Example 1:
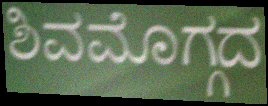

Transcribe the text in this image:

ಶಿವಮೊಗ್ಗದ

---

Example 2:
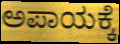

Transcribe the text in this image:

ಅಪಾಯಕ್ಕೆ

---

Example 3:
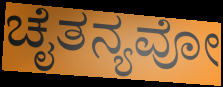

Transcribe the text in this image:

ಚೈತನ್ಯವೋ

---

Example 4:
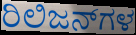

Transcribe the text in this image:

ರಿಲಿಜನ್‌ಗಳ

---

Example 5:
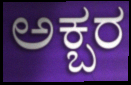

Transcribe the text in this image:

ಅಕ್ಬರ